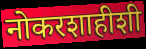
नोकरशाहीशी